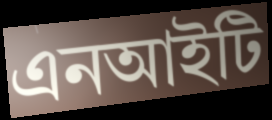
এনআইটি